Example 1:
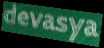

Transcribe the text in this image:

devasya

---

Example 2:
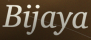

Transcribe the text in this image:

Bijaya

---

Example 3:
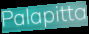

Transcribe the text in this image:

Palapitta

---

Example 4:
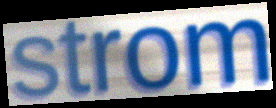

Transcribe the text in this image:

strom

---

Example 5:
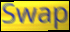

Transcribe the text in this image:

Swap